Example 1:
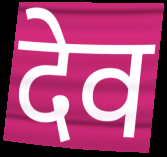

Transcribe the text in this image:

देव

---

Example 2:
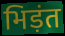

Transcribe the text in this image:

भिड़ंत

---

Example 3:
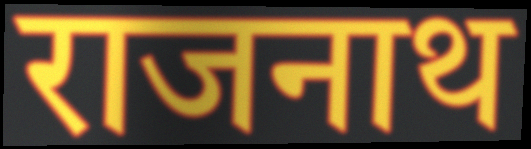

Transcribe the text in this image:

राजनाथ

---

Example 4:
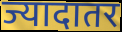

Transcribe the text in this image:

ज्यादातर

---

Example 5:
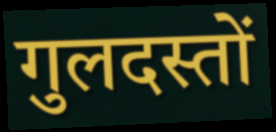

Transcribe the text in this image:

गुलदस्तों